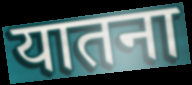
यातना